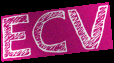
ECV